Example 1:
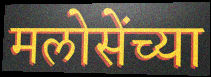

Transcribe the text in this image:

मलोसेंच्या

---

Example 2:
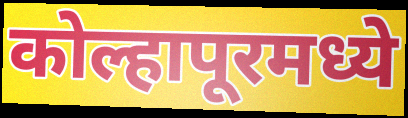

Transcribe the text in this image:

कोल्हापूरमध्ये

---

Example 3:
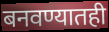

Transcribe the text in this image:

बनवण्यातही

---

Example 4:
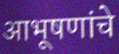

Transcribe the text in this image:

आभूषणांचे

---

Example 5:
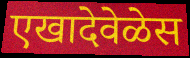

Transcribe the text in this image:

एखादेवेळेस